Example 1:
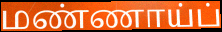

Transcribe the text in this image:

மண்ணாய்ப்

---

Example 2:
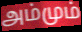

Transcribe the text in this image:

அம்மும்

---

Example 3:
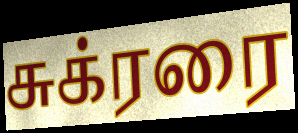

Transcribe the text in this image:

சுக்ரரை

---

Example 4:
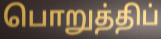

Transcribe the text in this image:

பொறுத்திப்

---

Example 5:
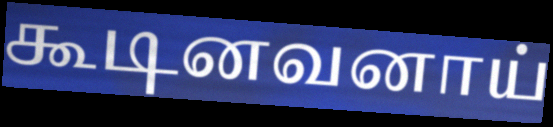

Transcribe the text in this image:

கூடினவனாய்